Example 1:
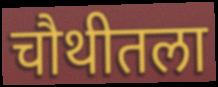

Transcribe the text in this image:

चौथीतला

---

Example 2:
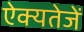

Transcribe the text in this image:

ऐक्यतेजें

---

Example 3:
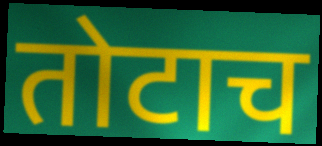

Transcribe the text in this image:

तोटाच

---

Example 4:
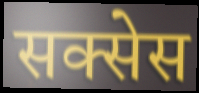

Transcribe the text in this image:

सक्सेस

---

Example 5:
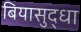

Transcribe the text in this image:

बियासुद्धा